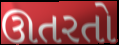
ઊતરતો